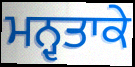
ਮਨ੍ਦਤਾਕੇ